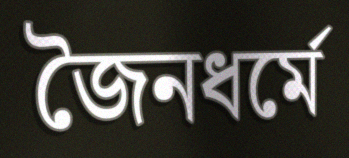
জৈনধর্মে